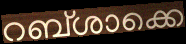
റബ്ശാക്കെ